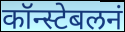
कॉन्स्टेबलनं